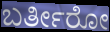
ಬರ್ತೀರೋ